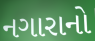
નગારાનો